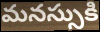
మనస్సుకి